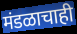
मंडळाचाही